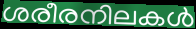
ശരീരനിലകൾ